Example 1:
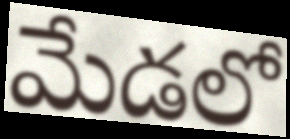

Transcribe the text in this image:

మేడలో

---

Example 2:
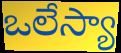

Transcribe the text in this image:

ఒలేస్యా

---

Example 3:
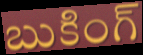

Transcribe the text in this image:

బుకింగ్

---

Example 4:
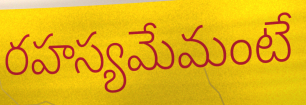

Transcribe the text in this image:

రహస్యమేమంటే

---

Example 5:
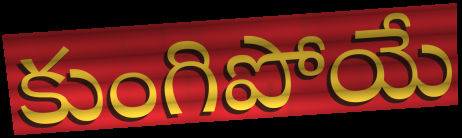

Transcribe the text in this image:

కుంగిపోయే